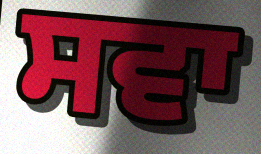
ਸਵਾ